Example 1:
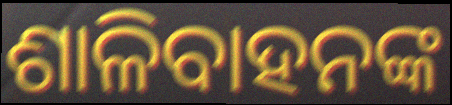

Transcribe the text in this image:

ଶାଳିବାହନଙ୍କ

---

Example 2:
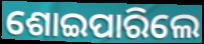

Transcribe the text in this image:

ଶୋଇପାରିଲେ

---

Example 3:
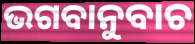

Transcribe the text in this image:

ଭଗବାନୁବାଚ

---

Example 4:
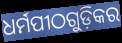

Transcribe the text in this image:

ଧର୍ମପୀଠଗୁଡ଼ିକର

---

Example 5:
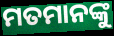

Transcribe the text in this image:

ମତମାନଙ୍କୁ